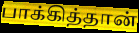
பாக்கித்தான்